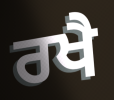
ਰਖੈ